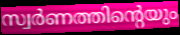
സ്വർണത്തിന്റെയും